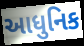
આધુનિક